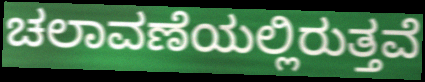
ಚಲಾವಣೆಯಲ್ಲಿರುತ್ತವೆ